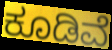
ಕೂಡಿವೆ